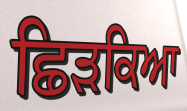
ਛਿੜਕਿਆ